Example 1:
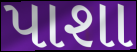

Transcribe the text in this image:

પાશા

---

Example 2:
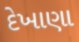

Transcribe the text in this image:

દેખાણા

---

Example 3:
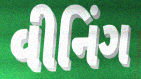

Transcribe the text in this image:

વીનિંગ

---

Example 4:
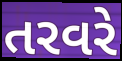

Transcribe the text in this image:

તરવરે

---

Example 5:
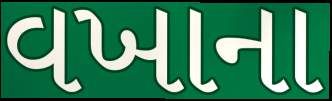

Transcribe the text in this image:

વખાના